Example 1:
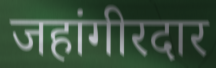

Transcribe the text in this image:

जहांगीरदार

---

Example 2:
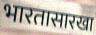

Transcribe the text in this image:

भारतासारखा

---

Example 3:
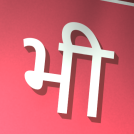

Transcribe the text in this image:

भी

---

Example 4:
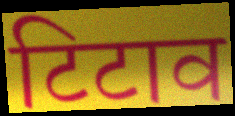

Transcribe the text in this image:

टिटाव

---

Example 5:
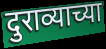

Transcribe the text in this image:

दुराव्याच्या